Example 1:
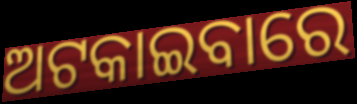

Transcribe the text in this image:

ଅଟକାଇବାରେ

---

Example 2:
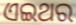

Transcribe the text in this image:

ଏଇଥର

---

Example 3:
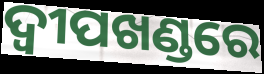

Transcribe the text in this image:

ଦ୍ଵୀପଖଣ୍ଡରେ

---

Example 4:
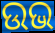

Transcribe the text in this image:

ଉଭ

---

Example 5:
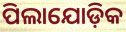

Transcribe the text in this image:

ପିଲାଯୋଡ଼ିକ